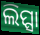
ଲିପ୍ସା